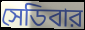
সেডিবার